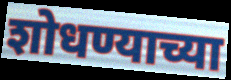
शोधण्याच्या